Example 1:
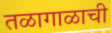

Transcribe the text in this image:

तळागाळाची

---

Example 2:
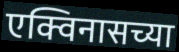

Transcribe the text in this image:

एक्विनासच्या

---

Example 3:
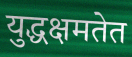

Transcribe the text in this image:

युद्धक्षमतेत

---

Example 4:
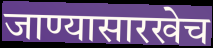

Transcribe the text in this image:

जाण्यासारखेच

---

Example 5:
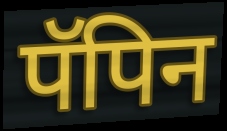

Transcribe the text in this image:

पॅपिन